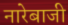
नारेबाजी